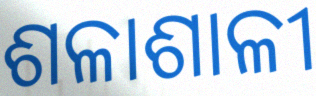
ଶଳାଶାଳୀ